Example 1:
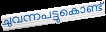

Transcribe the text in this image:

ചുവന്നപട്ടുകൊണ്ട്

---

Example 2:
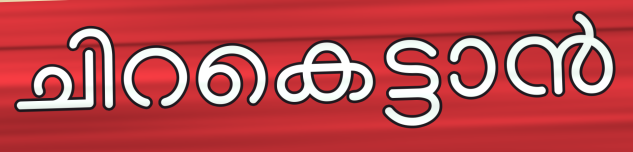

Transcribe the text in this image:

ചിറകെട്ടാൻ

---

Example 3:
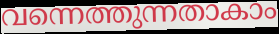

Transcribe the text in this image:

വന്നെത്തുന്നതാകാം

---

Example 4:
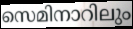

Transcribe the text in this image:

സെമിനാറിലും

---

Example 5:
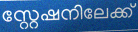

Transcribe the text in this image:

സ്റ്റേഷനിലേക്ക്